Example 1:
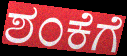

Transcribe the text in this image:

ಶಂಕೆಗೆ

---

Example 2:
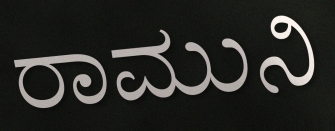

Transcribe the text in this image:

ರಾಮುನಿ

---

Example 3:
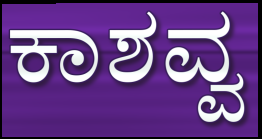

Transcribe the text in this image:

ಕಾಶವ್ವ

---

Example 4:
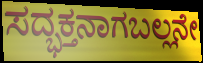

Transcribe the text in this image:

ಸದ್ಭಕ್ತನಾಗಬಲ್ಲನೇ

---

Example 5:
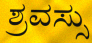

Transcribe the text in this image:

ಶ್ರವಸ್ಸು